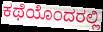
ಕಥೆಯೊಂದರಲ್ಲಿ